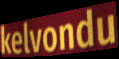
kelvondu